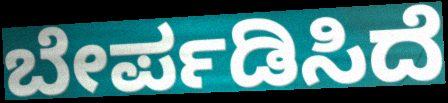
ಬೇರ್ಪಡಿಸಿದೆ